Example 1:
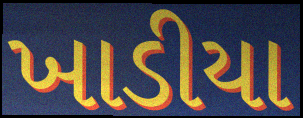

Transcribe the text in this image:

ખાડીયા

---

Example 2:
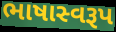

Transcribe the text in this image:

ભાષાસ્વરૂપ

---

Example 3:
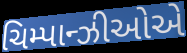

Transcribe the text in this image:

ચિમ્પાન્ઝીઓએ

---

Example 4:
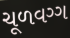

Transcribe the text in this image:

ચૂળવગ્ગ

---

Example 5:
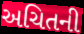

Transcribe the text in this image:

અચિતની